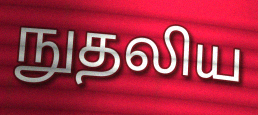
நுதலிய